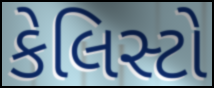
કેલિસ્ટો